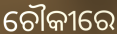
ଚୌକୀରେ